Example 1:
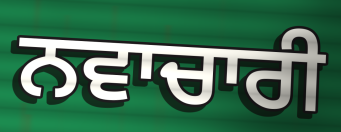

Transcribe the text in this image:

ਨਵਾਚਾਰੀ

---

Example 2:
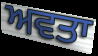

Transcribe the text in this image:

ਅਵਤਾ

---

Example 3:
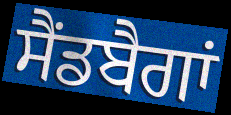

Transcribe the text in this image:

ਸੈਂਡਬੈਗਾਂ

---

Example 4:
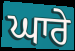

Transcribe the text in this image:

ਘਾਰੇ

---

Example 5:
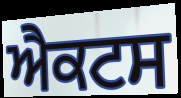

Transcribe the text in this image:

ਐਕਟਸ